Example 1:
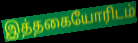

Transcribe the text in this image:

இத்தகையோரிடம்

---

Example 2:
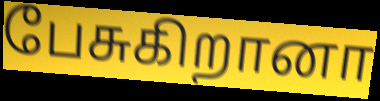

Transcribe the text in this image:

பேசுகிறானா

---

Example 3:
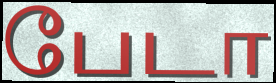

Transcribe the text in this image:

பேடா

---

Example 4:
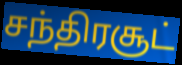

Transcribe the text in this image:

சந்திரசூட்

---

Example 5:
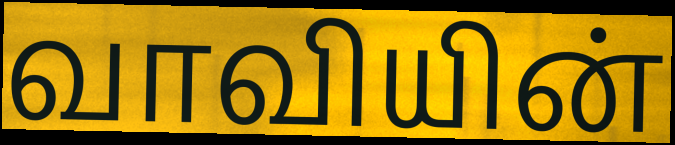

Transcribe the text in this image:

வாவியின்